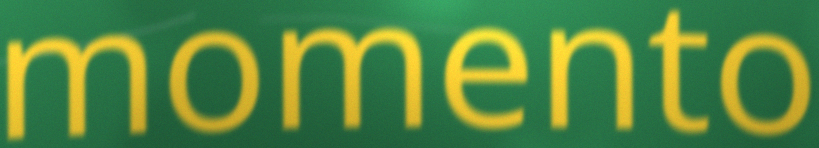
momento